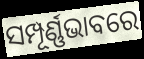
ସମ୍ପୂର୍ଣ୍ଣଭାବରେ